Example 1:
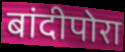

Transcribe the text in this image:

बांदीपोरा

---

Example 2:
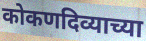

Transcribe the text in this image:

कोकणदिव्याच्या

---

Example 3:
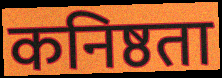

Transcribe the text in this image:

कनिष्ठता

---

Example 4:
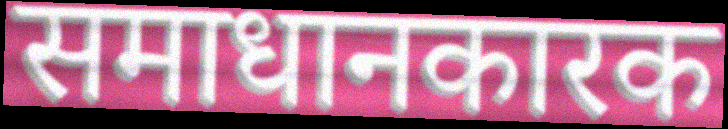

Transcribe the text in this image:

समाधानकारक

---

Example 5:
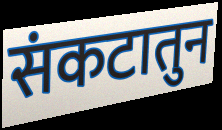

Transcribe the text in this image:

संकटातुन